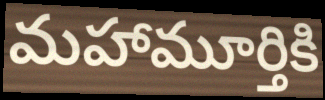
మహామూర్తికి